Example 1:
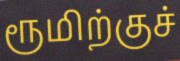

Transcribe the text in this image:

ரூமிற்குச்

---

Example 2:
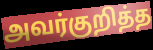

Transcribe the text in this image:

அவர்குறித்த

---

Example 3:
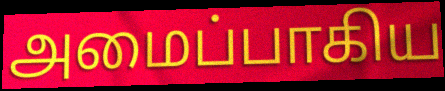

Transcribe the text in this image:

அமைப்பாகிய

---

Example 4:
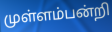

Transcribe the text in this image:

முள்ளம்பன்றி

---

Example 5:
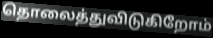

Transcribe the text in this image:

தொலைத்துவிடுகிறோம்